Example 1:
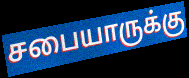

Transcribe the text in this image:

சபையாருக்கு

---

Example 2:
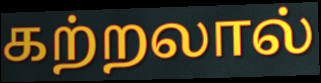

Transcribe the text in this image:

கற்றலால்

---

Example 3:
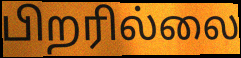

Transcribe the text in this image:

பிறரில்லை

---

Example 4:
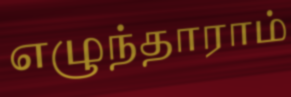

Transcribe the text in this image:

எழுந்தாராம்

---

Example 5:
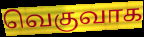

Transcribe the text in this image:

வெகுவாக